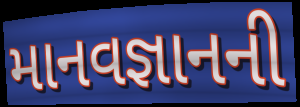
માનવજ્ઞાનની